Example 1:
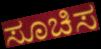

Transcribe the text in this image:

ಸೂಚಿಸ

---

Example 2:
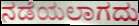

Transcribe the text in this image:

ನಡೆಯಲಾಗದು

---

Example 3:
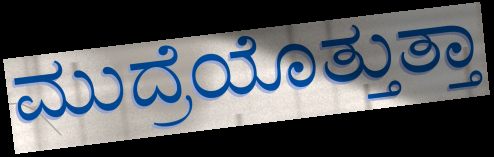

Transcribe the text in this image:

ಮುದ್ರೆಯೊತ್ತುತ್ತಾ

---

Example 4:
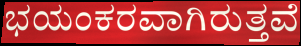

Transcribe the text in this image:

ಭಯಂಕರವಾಗಿರುತ್ತವೆ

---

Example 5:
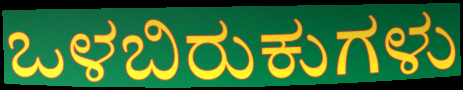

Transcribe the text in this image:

ಒಳಬಿರುಕುಗಳು